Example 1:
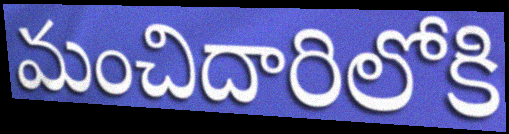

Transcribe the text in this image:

మంచిదారిలోకి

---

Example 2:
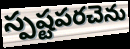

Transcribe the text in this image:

స్పష్టపరచెను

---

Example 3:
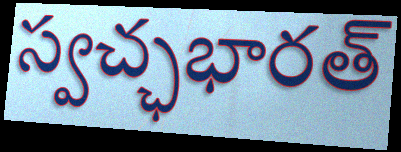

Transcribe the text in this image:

స్వచ్ఛభారత్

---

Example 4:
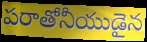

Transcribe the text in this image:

పరాతోనీయుడైన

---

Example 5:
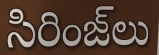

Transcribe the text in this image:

సిరింజ్‌లు